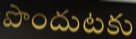
పొందుటకు